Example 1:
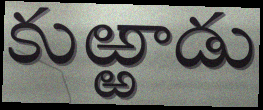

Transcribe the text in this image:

కుఱ్ఱాడు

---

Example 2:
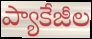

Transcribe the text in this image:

ప్యాకేజీల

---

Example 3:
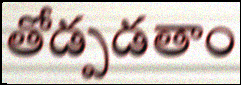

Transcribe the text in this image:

తోడ్పడతాం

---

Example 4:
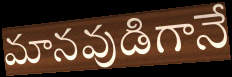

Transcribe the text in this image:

మానవుడిగానే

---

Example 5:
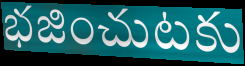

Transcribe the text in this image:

భజించుటకు